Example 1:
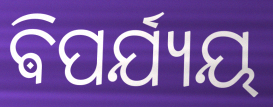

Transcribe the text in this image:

ଵିପର୍ଯ୍ୟୟ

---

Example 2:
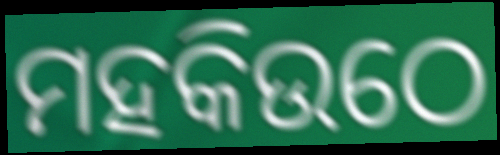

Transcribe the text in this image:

ମହକିଉଠେ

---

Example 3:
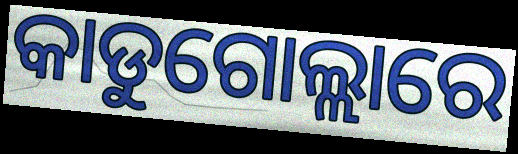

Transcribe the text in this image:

କାଡୁଗୋଲ୍ଲାରେ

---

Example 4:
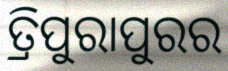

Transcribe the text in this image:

ତ୍ରିପୁରାପୁରର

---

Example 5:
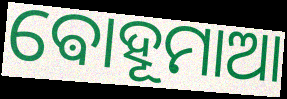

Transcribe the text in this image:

ଵୋହୂମାଆ